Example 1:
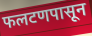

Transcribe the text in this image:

फलटणपासून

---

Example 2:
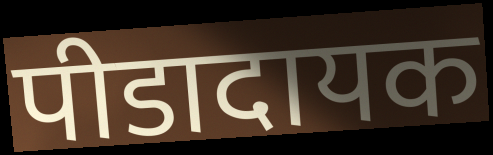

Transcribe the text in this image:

पीडादायक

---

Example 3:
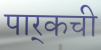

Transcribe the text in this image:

पार्कची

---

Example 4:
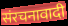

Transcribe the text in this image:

संरचनावादी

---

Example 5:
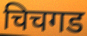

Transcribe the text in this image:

चिचगड